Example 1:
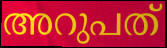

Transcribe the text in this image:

അറുപത്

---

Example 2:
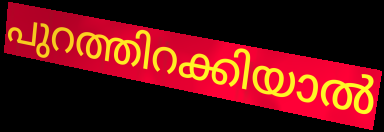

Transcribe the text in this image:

പുറത്തിറക്കിയാൽ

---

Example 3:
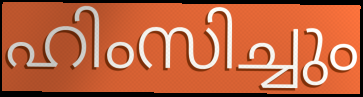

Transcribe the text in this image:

ഹിംസിച്ചും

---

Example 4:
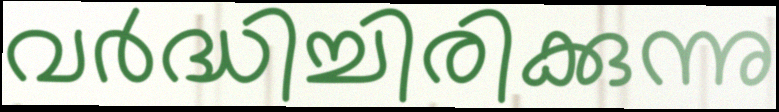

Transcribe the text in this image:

വർദ്ധിച്ചിരിക്കുന്നു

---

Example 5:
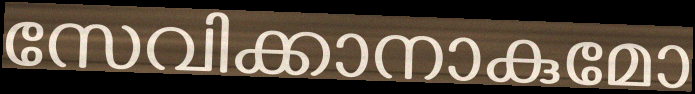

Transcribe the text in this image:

സേവിക്കാനാകുമോ